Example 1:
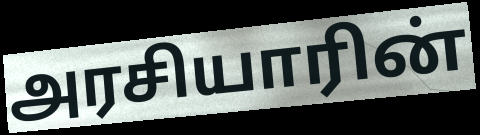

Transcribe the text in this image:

அரசியாரின்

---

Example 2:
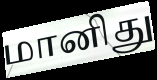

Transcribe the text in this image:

மானிது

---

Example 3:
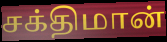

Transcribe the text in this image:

சக்திமான்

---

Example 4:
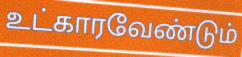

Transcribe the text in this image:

உட்காரவேண்டும்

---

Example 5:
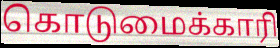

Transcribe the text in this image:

கொடுமைக்காரி